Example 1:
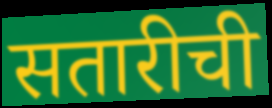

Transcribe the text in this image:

सतारीची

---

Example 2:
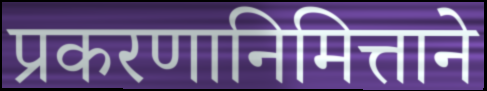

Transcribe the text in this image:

प्रकरणानिमित्ताने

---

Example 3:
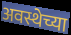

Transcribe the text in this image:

अवस्थेच्या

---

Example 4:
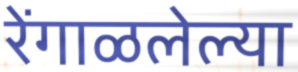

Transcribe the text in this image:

रेंगाळलेल्या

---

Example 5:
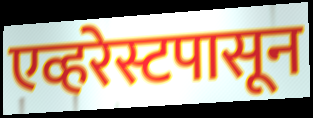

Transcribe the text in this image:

एव्हरेस्टपासून